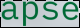
apse